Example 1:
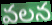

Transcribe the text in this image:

వలన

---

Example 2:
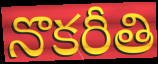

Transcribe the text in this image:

నొకరీతి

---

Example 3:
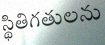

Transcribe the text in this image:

స్థితిగతులను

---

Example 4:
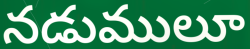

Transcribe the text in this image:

నడుములూ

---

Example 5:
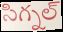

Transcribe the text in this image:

సిగ్నల్